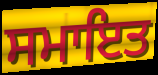
ਸਮਾਇਤ